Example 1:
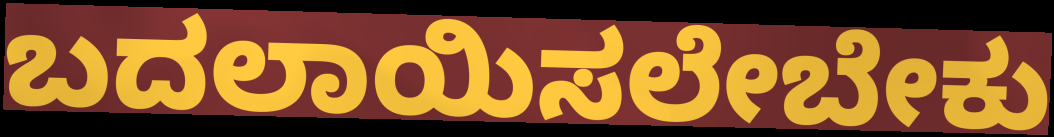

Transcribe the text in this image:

ಬದಲಾಯಿಸಲೇಬೇಕು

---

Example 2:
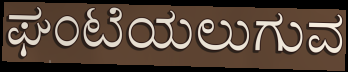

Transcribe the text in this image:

ಘಂಟೆಯಲುಗುವ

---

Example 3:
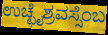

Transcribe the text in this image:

ಉಚ್ಛೈಶ್ರವಸ್ಸೆಂಬ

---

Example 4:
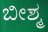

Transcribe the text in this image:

ಬೀಶ್ಮ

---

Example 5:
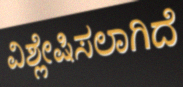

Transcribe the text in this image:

ವಿಶ್ಲೇಷಿಸಲಾಗಿದೆ